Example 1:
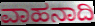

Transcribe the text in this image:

ವಾಹನಾದಿ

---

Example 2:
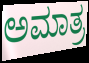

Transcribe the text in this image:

ಅಮಾತ್ರ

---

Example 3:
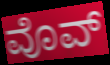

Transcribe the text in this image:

ವೊವ್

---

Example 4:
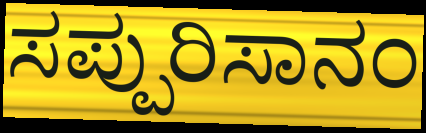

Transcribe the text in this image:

ಸಪ್ಪುರಿಸಾನಂ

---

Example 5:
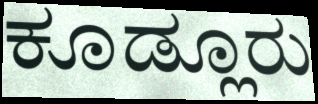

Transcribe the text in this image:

ಕೂಡ್ಲೂರು